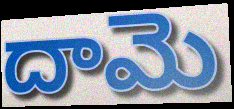
దామె